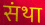
संथा